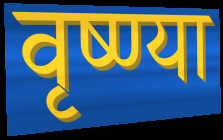
वृष्ण्या